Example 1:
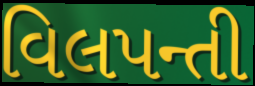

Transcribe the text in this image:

વિલપન્તી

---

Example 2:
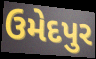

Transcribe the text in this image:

ઉમેદપુર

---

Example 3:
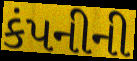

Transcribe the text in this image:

કંપનીની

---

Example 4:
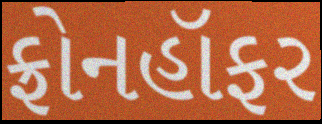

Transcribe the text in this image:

ફ્રોનહૉફર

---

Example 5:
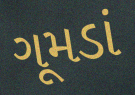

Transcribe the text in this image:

ગૂમડાં